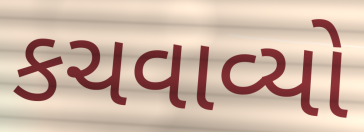
કચવાવ્યો